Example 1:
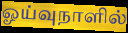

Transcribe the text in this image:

ஓய்வுநாளில்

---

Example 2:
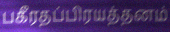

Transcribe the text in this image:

பகீரதப்பிரயத்தனம்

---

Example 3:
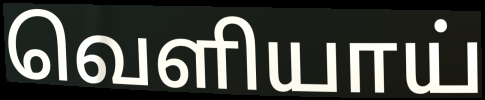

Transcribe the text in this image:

வெளியாய்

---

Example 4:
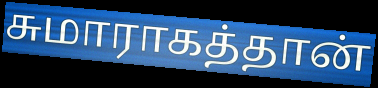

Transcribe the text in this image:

சுமாராகத்தான்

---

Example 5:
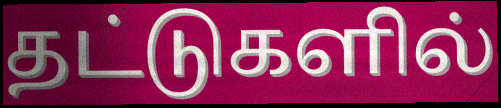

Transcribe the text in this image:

தட்டுகளில்